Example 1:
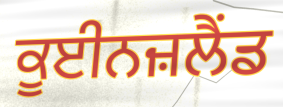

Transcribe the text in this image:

ਕੂਈਨਜ਼ਲੈਂਡ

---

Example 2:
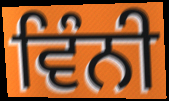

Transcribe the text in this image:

ਵਿੰਨੀ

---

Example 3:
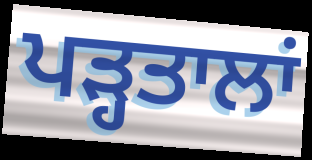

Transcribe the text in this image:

ਪੜ੍ਹਤਾਲਾਂ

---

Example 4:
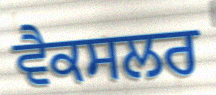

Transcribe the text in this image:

ਵੈਕਸਲਰ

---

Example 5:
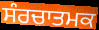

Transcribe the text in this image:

ਸੰਰਚਾਤਮਕ